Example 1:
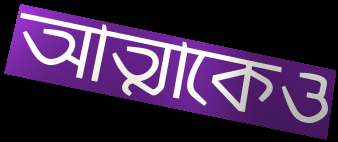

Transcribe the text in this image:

আত্মাকেও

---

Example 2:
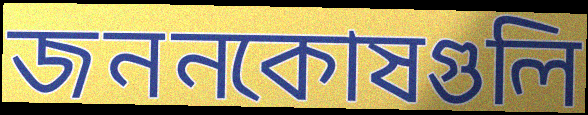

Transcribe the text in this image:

জননকোষগুলি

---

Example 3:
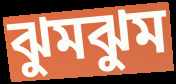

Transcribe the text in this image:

ঝুমঝুম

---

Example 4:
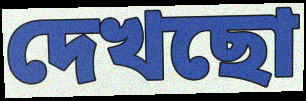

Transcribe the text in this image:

দেখছো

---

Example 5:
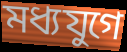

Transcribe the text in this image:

মধ্যযুগে